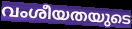
വംശീയതയുടെ